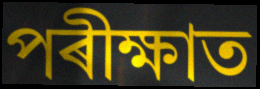
পৰীক্ষাত